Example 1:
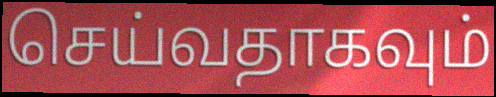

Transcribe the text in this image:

செய்வதாகவும்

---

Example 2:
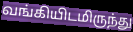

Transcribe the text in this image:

வங்கியிடமிருந்து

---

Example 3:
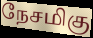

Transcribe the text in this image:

நேசமிகு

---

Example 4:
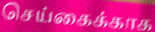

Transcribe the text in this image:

செய்கைக்காக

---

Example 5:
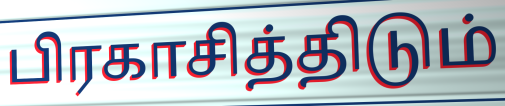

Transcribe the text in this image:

பிரகாசித்திடும்